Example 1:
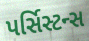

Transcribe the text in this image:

પર્સિસ્ટન્સ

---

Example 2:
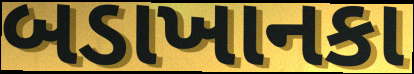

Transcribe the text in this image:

બડાખાનકા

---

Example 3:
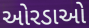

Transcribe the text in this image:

ઓરડાઓ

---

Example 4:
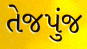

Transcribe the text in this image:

તેજપુંજ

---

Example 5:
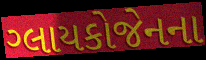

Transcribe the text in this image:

ગ્લાયકોજેનના